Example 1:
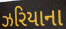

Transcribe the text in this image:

ઝરિયાના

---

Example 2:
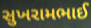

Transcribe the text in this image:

સુખરામભાઈ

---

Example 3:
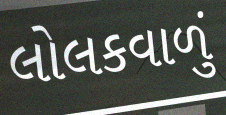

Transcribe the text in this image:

લોલકવાળું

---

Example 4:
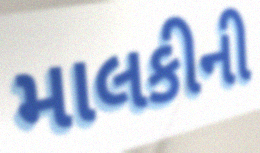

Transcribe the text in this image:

માલકીની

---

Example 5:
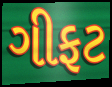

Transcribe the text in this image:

ગીફટ